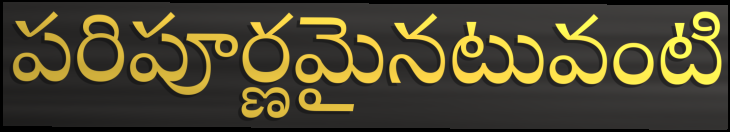
పరిపూర్ణమైనటువంటి